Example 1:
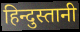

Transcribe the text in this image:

हिन्दुस्तानी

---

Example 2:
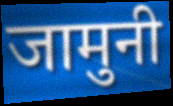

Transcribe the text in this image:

जामुनी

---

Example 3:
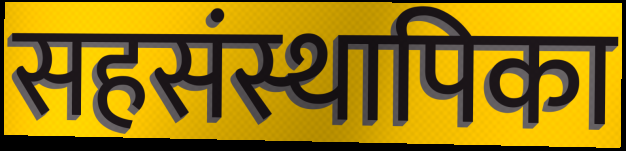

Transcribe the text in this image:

सहसंस्थापिका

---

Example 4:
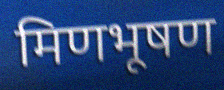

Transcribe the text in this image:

मिणभूषण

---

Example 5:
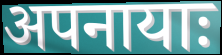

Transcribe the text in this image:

अपनायाः